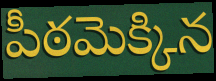
పీఠమెక్కిన